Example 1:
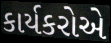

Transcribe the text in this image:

કાર્યકરોએ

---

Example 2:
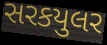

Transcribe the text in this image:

સરકયુલર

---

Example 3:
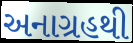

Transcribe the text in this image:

અનાગ્રહથી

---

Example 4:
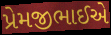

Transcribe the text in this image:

પ્રેમજીભાઈએ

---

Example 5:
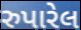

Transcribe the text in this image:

રુપારેલ